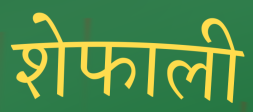
शेफाली